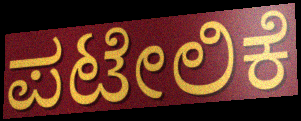
ಪಟೇಲಿಕೆ